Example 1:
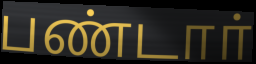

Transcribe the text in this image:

பண்டார்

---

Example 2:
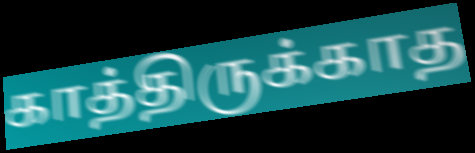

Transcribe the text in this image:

காத்திருக்காத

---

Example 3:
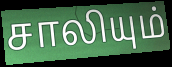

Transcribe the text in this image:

சாலியும்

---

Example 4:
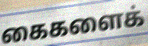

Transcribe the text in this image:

கைகளைக்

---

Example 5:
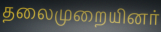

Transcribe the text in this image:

தலைமுறையினர்